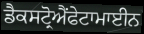
ਡੈਕਸਟ੍ਰੋਐਂਫੇਟਾਮਾਈਨ